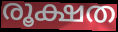
രൂക്ഷത